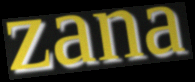
zana